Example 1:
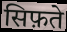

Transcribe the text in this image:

सिफ़ते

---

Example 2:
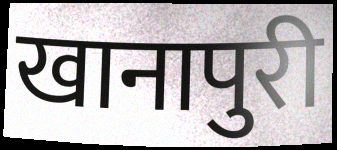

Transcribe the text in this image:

खानापुरी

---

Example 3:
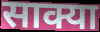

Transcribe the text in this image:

साक्या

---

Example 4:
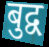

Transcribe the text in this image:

बुद्व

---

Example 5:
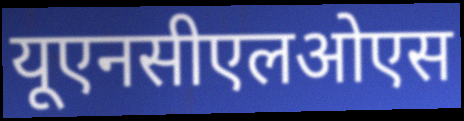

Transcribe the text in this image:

यूएनसीएलओएस